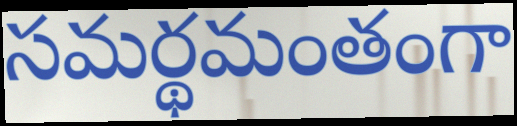
సమర్థమంతంగా